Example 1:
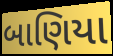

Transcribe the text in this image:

બાણિયા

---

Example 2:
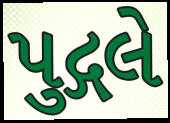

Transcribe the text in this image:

પુદ્ગલે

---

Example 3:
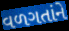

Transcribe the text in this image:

વળગતાંને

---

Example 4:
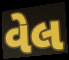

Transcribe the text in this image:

વેલ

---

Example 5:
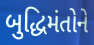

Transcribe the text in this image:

બુદ્ધિમંતોને